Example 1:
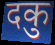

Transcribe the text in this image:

दकु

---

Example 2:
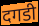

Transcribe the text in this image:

दगडी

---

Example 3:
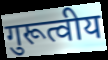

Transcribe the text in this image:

गुरूत्वीय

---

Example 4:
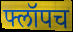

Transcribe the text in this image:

फ्लॉपच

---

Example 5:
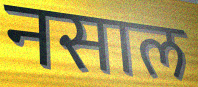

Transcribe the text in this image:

नसाल